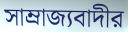
সাম্রাজ্যবাদীর